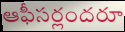
ఆఫీసర్లందరూ